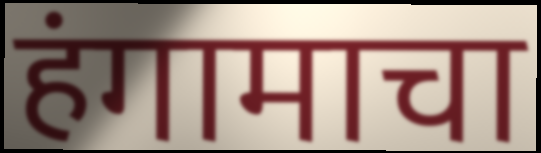
हंगामाचा